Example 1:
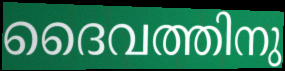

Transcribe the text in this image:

ദൈവത്തിനു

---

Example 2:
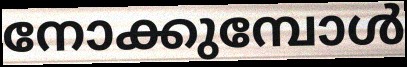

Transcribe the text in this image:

നോക്കുമ്പോൾ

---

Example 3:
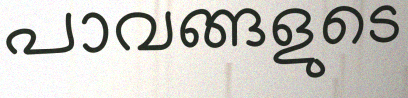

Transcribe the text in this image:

പാവങ്ങളുടെ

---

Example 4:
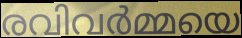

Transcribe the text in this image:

രവിവർമ്മയെ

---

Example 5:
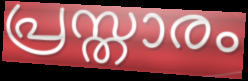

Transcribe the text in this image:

പ്രസ്താരം